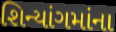
શિન્યાંગમાંના